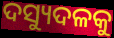
ଦସ୍ୟୁଦଳକୁ